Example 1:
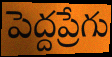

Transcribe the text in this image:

పెద్దప్రేగు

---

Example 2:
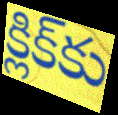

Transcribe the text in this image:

క్లిక్‌కు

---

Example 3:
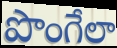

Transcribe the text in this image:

పొంగేలా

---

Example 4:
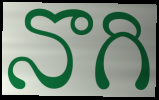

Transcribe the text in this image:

నొగి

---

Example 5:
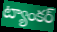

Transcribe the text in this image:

ట్యాంకర్